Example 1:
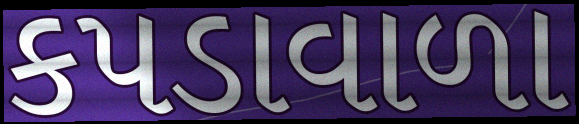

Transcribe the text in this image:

કપડાવાળા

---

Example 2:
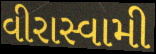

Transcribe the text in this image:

વીરાસ્વામી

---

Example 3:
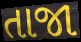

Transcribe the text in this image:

તાજા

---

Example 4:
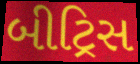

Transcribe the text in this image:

બીટ્રિસ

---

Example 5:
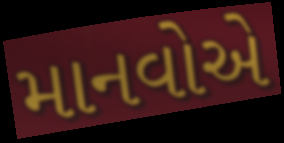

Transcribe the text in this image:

માનવોએ